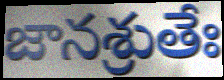
జానశ్రుతేః